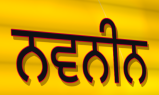
ਨਵਨੀਨ